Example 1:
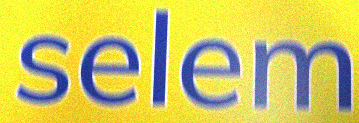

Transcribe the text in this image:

selem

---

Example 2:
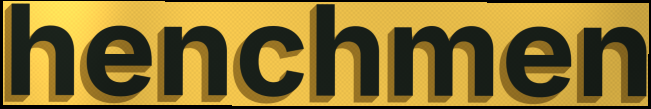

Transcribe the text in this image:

henchmen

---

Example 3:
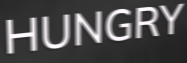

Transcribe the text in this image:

HUNGRY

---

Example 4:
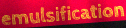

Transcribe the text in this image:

emulsification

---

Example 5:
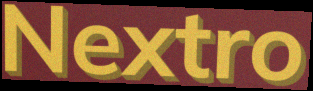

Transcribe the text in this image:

Nextro